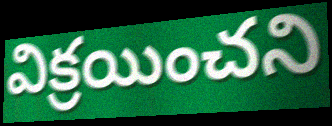
విక్రయించని